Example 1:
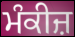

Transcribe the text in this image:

ਮੰਕੀਜ਼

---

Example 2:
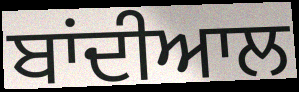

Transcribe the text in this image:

ਬਾਂਦੀਆਲ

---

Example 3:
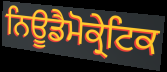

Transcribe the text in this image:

ਨਿਊਡੈਮੋਕ੍ਰੇਟਿਕ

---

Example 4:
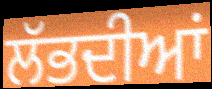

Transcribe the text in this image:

ਲੱਭਦੀਆਂ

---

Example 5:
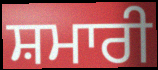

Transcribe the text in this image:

ਸ਼ਮਾਰੀ